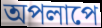
অপলাপে